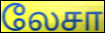
லேசா